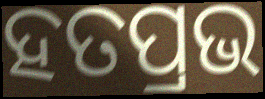
ହତପ୍ରଭ